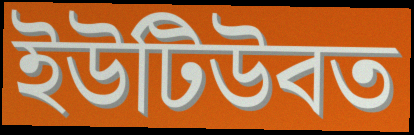
ইউটিউবত